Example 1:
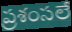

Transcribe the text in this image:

ప్రశంసలే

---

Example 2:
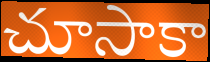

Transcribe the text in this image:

చూసాకా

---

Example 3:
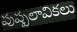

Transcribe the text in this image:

పుష్పలావికలు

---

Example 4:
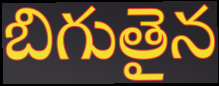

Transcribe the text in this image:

బిగుతైన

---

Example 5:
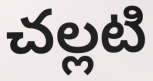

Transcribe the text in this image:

చల్లటి